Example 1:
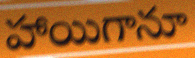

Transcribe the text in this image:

హాయిగానూ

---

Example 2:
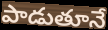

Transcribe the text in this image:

పాడుతూనే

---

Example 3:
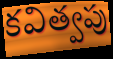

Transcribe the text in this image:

కవిత్వపు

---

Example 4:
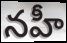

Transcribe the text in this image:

నహీ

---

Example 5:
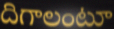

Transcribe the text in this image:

దిగాలంటూ